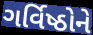
ગર્વિષ્ઠોને